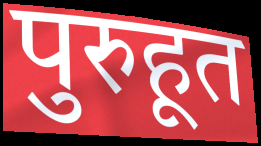
पुरुहूत